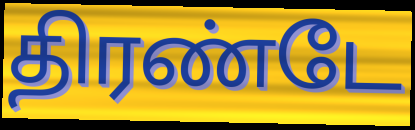
திரண்டே